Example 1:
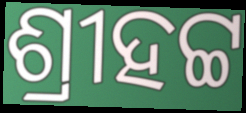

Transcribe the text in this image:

ଶ୍ରୀହଟ୍ଟ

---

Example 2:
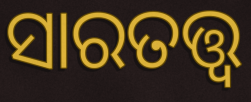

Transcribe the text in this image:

ସାରତତ୍ତ୍ୱ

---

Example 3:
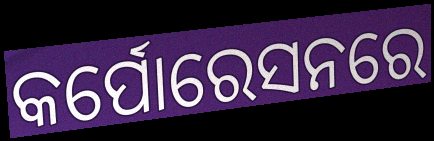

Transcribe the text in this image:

କର୍ପୋରେସନରେ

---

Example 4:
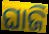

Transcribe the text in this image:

ଘାଜି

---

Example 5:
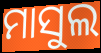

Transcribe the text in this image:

ମାସୁଲ